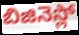
బిజినెస్లో